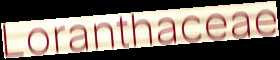
Loranthaceae